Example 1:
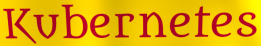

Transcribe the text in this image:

Kubernetes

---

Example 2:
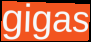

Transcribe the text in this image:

gigas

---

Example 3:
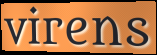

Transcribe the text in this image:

virens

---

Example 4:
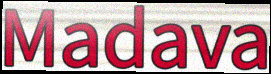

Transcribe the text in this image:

Madava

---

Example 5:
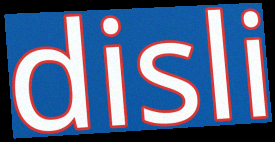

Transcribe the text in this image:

disli